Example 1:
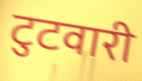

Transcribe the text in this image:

टुटवारी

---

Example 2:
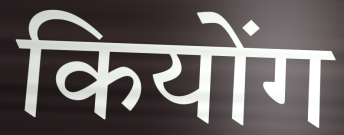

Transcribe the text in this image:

कियोंग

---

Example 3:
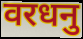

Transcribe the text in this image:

वरधनु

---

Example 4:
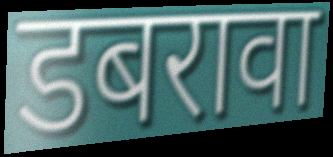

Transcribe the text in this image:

डबरावा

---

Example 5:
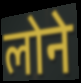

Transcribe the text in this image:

लोने